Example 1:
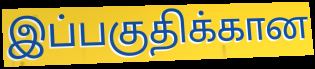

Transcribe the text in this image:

இப்பகுதிக்கான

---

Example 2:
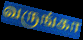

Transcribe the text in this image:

வருங்கா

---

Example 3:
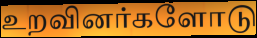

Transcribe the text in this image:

உறவினர்களோடு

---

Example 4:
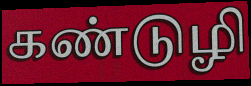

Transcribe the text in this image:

கண்டுழி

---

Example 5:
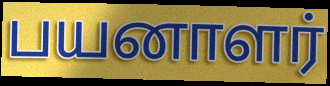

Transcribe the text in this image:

பயனாளர்